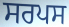
ਸਰਪਸ